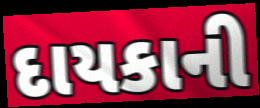
દાયકાની